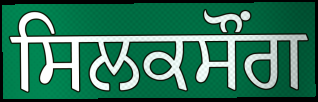
ਸਿਲਕਸੌਂਗ